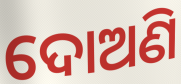
ଦୋଅଣି